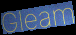
Gleam